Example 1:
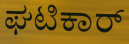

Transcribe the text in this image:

ಘಟಿಕಾರ್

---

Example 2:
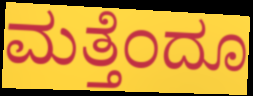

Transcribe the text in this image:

ಮತ್ತೆಂದೂ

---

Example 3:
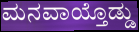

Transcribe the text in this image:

ಮನವಾಯ್ತೊಡ್ಡು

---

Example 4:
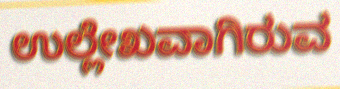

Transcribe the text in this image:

ಉಲ್ಲೇಖವಾಗಿರುವ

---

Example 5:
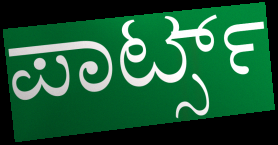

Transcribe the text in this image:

ಪಾರ್ಟ್ಸ್